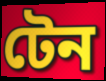
টেন